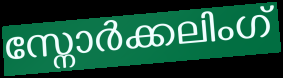
സ്നോർക്കലിംഗ്